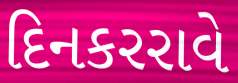
દિનકરરાવે